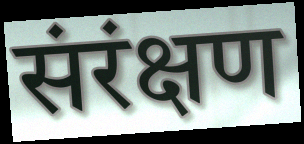
संरंक्षण